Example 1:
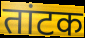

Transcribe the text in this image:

तांटक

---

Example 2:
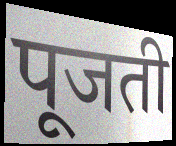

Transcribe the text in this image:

पूजती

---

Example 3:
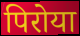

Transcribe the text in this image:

पिरोया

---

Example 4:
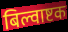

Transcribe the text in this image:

बिल्वाष्टक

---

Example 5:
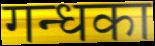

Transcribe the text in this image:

गन्धका